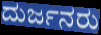
ದುರ್ಜನರು